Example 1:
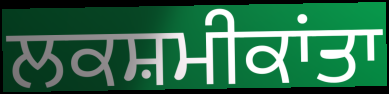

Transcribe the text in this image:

ਲਕਸ਼ਮੀਕਾਂਤਾ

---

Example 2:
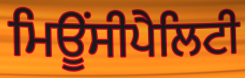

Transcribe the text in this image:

ਮਿਊਂਸੀਪੈਲਿਟੀ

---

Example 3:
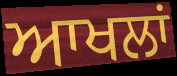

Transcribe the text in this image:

ਆਖਲਾਂ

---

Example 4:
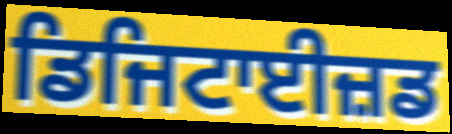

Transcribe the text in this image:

ਡਿਜਿਟਾਈਜ਼ਡ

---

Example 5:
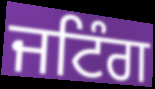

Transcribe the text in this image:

ਜਟਿੰਗ